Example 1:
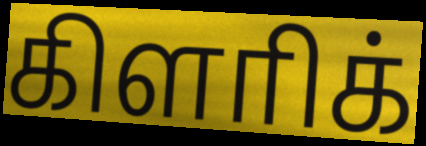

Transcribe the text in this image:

கிளரிக்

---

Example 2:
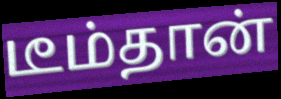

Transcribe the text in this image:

டீம்தான்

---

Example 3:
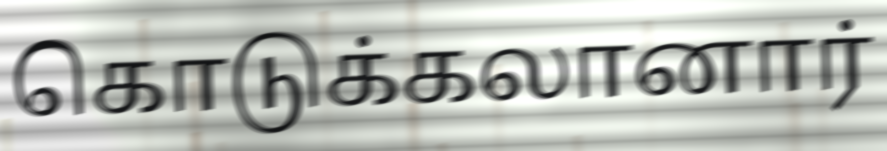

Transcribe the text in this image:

கொடுக்கலானார்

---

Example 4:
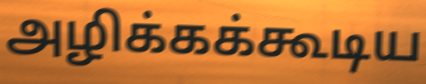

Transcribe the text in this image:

அழிக்கக்கூடிய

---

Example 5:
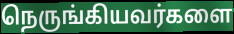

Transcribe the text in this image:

நெருங்கியவர்களை